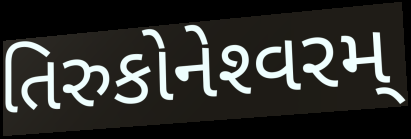
તિરુકોનેશ્‍વરમ્